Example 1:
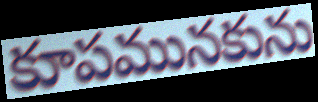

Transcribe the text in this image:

కూపమునకును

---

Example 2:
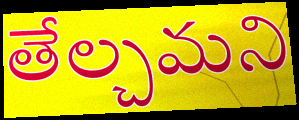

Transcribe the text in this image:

తేల్చమని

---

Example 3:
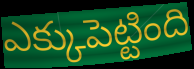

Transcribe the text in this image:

ఎక్కుపెట్టింది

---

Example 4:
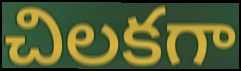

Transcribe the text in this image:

చిలకగా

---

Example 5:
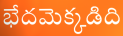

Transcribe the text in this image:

భేదమెక్కడిది